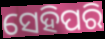
ସେହିପରି